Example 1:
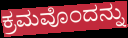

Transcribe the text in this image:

ಕ್ರಮವೊಂದನ್ನು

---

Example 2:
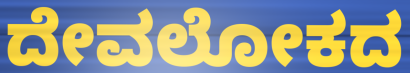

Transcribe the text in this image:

ದೇವಲೋಕದ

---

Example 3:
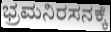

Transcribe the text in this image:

ಭ್ರಮನಿರಸನಕ್ಕೆ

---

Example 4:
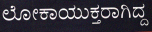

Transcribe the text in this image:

ಲೋಕಾಯುಕ್ತರಾಗಿದ್ದ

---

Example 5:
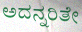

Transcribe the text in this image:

ಅದನ್ನರಿತೇ